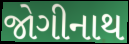
જોગીનાથ